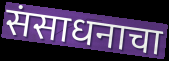
संसाधनाचा